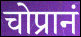
चोप्रानं